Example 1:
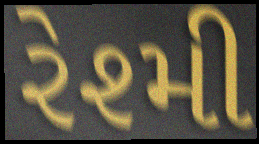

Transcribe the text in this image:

રેશ્મી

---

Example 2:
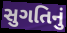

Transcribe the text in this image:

સુગતિનું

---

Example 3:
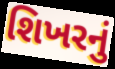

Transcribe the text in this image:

શિખરનું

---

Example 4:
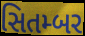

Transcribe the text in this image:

સિતમ્બર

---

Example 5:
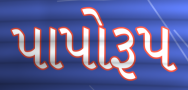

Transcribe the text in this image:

પાપોરૂપ